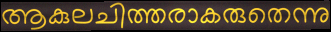
ആകുലചിത്തരാകരുതെന്നു